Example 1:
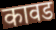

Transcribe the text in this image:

कावड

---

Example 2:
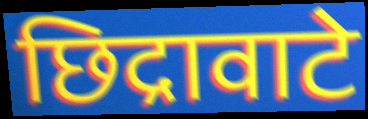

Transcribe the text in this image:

छिद्रावाटे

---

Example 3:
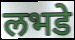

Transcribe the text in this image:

लभडे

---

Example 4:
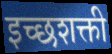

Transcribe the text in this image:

इच्छशक्ती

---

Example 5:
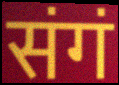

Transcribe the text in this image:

संगं